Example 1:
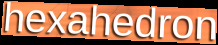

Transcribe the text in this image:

hexahedron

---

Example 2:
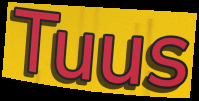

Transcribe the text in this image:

Tuus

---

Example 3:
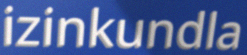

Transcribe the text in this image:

izinkundla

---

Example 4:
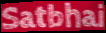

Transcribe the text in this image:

Satbhai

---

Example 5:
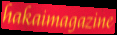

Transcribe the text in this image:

hakaimagazine